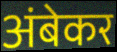
अंबेकर